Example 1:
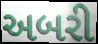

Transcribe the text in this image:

અબરી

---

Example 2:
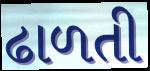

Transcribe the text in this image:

ઢાળતી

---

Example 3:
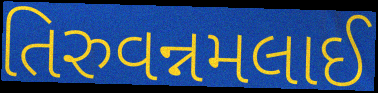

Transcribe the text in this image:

તિરુવન્નમલાઈ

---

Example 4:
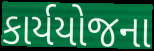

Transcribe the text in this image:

કાર્યયોજના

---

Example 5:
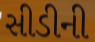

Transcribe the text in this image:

સીડીની